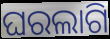
ଘରଲାଗି